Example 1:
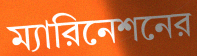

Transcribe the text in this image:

ম্যারিনেশনের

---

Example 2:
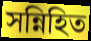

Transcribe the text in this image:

সন্নিহিত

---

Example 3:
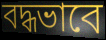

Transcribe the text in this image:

বদ্ধভাবে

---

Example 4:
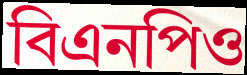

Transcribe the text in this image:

বিএনপিও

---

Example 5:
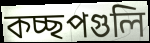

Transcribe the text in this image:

কচ্ছপগুলি